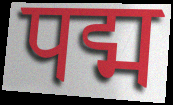
पद्म